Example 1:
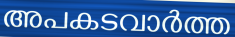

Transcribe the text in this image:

അപകടവാർത്ത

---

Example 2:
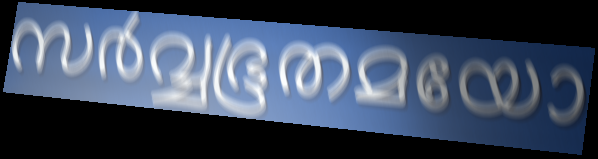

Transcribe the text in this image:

സർവ്വഭൂതമയോ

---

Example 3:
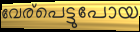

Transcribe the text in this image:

വേര്പെട്ടുപോയ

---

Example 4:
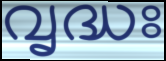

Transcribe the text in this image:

വൃദ്ധഃ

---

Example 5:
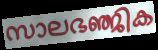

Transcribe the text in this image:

സാലഭഞ്ജിക